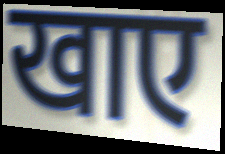
खाए